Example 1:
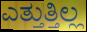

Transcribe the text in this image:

ಎತ್ತುತ್ತಿಲ್ಲ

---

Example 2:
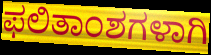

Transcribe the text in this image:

ಫಲಿತಾಂಶಗಳಾಗಿ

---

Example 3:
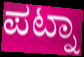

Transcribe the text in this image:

ಪಟ್ನಾ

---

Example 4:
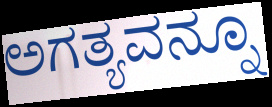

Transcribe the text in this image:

ಅಗತ್ಯವನ್ನೂ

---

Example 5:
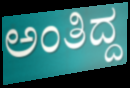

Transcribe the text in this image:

ಅಂತಿದ್ದ